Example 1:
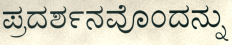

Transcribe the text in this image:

ಪ್ರದರ್ಶನವೊಂದನ್ನು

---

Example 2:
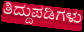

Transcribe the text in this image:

ತಿದ್ದುಪಡಿಗಳು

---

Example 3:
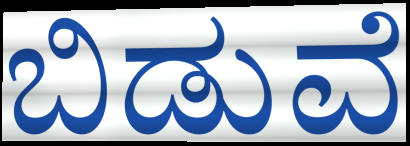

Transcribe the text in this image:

ಬಿಡುವೆ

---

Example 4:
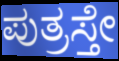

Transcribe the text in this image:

ಪುತ್ರಸ್ತೇ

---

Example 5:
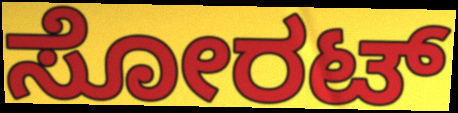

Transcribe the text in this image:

ಸೋರಟ್